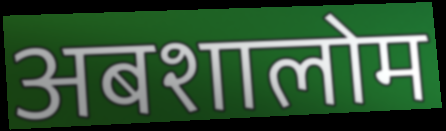
अबशालोम